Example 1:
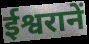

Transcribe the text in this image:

ईश्वरानें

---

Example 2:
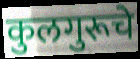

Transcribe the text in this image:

कुलगुरूचे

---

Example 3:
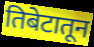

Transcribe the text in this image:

तिबेटातून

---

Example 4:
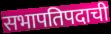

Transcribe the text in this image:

सभापतिपदाची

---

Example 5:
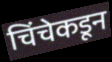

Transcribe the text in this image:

चिंचेकडून